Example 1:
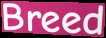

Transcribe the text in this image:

Breed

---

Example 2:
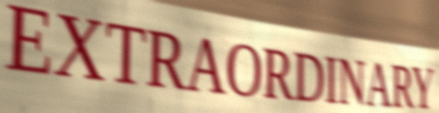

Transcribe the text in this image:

EXTRAORDINARY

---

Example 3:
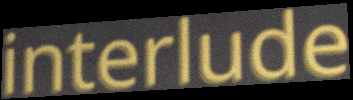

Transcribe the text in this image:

interlude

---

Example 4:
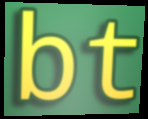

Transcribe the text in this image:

bt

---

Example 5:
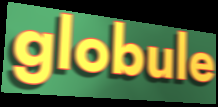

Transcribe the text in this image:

globule